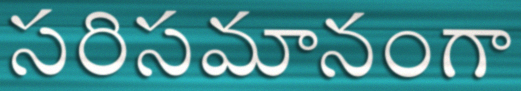
సరిసమానంగా